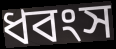
ধবংস